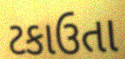
ટકાઉતા